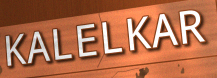
KALELKAR